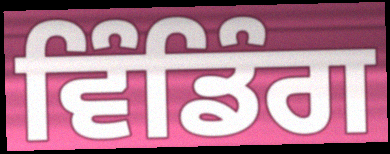
ਵਿੰਡਿੰਗ